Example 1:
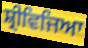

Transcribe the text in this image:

ਸ਼੍ਰੀਵਿਜਿਆ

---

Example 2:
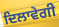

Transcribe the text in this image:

ਦਿਲਾਵੇਗੀ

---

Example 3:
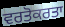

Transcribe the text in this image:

ਵਰਤੋਕਰਤਾ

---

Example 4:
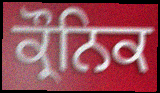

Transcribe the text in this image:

ਕ੍ਰੌਨਿਕ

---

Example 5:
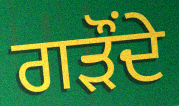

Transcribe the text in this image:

ਗੜੌਂਦੇ